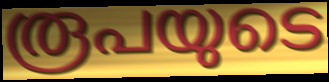
രൂപയുടെ